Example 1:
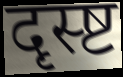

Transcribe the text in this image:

दृस्ष्ट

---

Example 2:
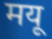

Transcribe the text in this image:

मयू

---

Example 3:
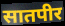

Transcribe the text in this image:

सातपीर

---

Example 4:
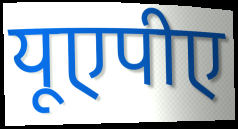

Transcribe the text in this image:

यूएपीए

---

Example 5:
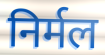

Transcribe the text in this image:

निर्मल